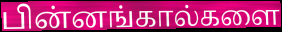
பின்னங்கால்களை